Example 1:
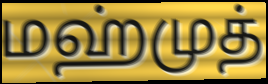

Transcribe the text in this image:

மஹ்முத்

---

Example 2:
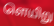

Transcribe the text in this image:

ளெயிறு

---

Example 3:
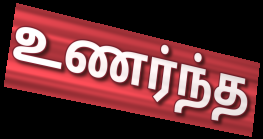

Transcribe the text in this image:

உணர்ந்த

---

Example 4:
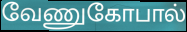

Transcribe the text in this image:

வேணுகோபால்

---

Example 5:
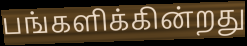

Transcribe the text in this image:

பங்களிக்கின்றது